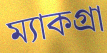
ম্যাকগ্রা